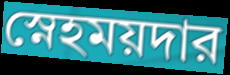
স্নেহময়দার